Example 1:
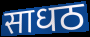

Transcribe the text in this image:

साधठ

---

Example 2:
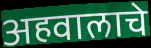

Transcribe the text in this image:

अहवालाचे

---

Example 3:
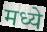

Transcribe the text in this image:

मध्ये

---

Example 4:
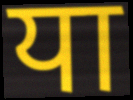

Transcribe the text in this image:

या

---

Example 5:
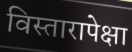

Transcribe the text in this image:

विस्तारापेक्षा